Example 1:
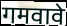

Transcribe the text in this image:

गमवावे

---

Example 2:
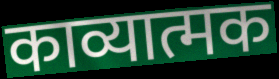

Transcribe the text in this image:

काव्यात्मक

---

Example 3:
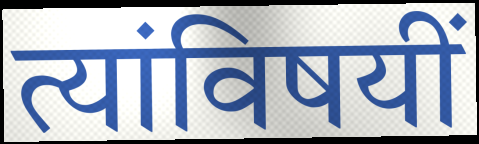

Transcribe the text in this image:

त्यांविषयीं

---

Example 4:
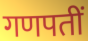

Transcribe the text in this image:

गणपतीं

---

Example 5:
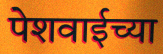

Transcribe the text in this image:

पेशवाईच्या